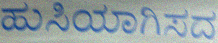
ಹುಸಿಯಾಗಿಸದ